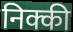
निक्‍की